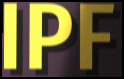
IPF